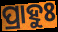
ପ୍ରାହୁଃ